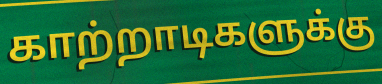
காற்றாடிகளுக்கு